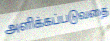
அளிக்கப்படுவதை